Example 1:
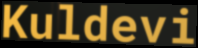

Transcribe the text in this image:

Kuldevi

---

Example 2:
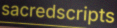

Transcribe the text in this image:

sacredscripts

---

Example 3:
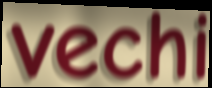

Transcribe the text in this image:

vechi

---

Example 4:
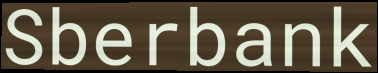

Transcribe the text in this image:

Sberbank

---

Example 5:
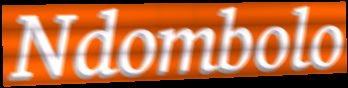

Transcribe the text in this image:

Ndombolo